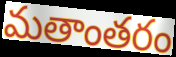
మతాంతరం